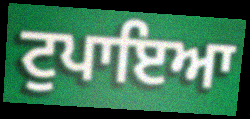
ਟੁਪਾਇਆ